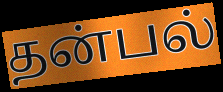
தன்பல்